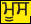
ਮੂਸ